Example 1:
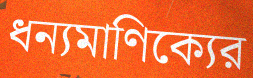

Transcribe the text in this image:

ধন্যমাণিক্যের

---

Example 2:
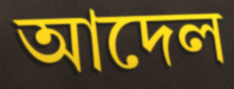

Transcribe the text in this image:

আদেল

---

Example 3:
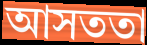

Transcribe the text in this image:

আসততা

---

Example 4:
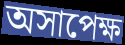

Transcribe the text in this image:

অসাপেক্ষ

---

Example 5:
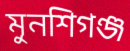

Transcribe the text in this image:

মুনশিগঞ্জ